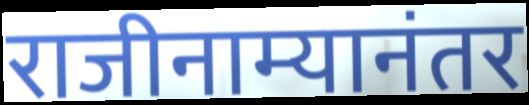
राजीनाम्यानंतर